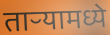
ताऱ्यामध्ये